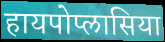
हायपोप्लासिया